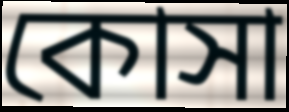
কোসা